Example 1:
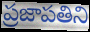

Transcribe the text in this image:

ప్రజాపతిని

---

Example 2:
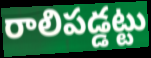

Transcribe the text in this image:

రాలిపడ్డట్టు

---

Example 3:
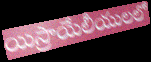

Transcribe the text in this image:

యిస్రాయేలీయులలో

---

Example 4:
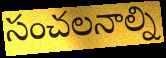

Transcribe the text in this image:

సంచలనాల్ని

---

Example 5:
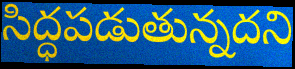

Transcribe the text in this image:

సిద్ధపడుతున్నదని